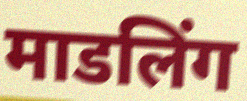
माडलिंग